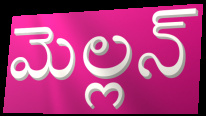
మెల్లన్